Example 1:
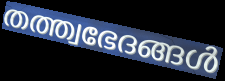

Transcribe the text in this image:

തത്ത്വഭേദങ്ങൾ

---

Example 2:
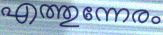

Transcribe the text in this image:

എത്തുന്നേരം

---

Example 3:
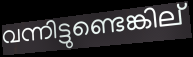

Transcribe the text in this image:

വന്നിട്ടുണ്ടെങ്കില്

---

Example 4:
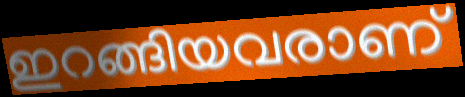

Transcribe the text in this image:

ഇറങ്ങിയവരാണ്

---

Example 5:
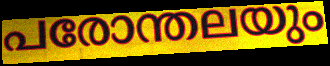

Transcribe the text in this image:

പരോന്തലയും